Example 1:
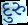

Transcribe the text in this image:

દુરુ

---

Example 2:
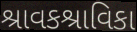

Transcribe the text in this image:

શ્રાવકશ્રાવિકા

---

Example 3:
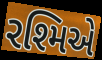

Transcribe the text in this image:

રશ્મિએ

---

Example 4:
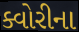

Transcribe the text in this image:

ક્વોરીના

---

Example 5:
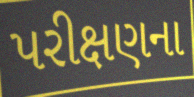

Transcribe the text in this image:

પરીક્ષણના